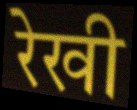
रेखी